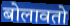
बोलावतो